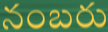
నంబరు